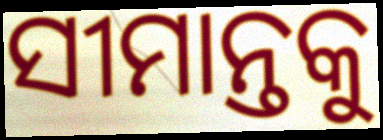
ସୀମାନ୍ତକୁ